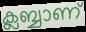
ക്ലബ്ബാണ്